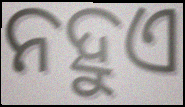
ନହୁଏ